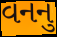
વનનુ